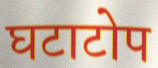
घटाटोप